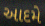
આદમે